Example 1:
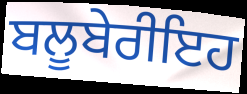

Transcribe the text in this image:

ਬਲੂਬੇਰੀਇਹ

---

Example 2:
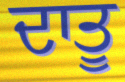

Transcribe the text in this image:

ਦਾਤੂ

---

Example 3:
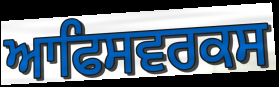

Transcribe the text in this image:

ਆਫਿਸਵਰਕਸ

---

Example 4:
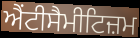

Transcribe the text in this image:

ਐਂਟੀਸੈਮੀਟਿਜ਼ਮ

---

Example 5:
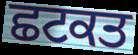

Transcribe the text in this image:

ਛਟਕਤ